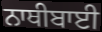
ਨਾਥੀਬਾਈ